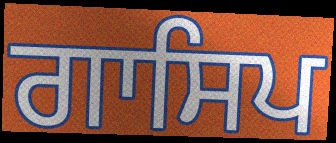
ਗਾਸਿਪ